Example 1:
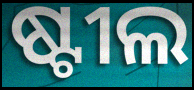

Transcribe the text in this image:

ଷ୍ଟୀଲ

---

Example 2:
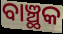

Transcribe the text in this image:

ବାଞ୍ଛକ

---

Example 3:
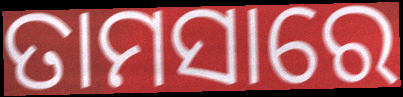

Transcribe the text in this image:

ତାମସାରେ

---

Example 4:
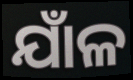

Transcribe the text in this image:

ଯାଁଳ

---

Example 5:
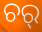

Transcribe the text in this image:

ଚର୍